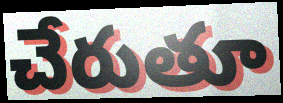
చేరుతూ